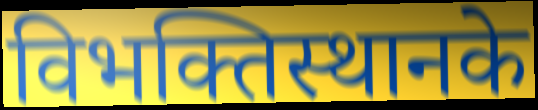
विभक्तिस्थानके